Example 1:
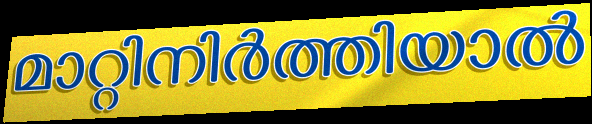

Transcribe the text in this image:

മാറ്റിനിർത്തിയാൽ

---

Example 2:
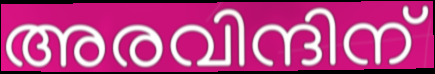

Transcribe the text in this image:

അരവിന്ദിന്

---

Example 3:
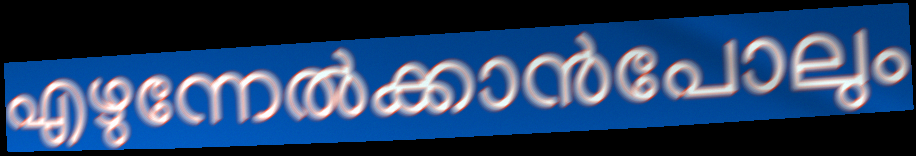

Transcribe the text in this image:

എഴുന്നേൽക്കാൻപോലും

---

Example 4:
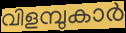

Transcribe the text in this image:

വിളമ്പുകാർ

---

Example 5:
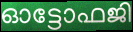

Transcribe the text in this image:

ഓട്ടോഫജി